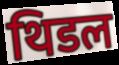
थिडल